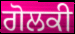
ਗੋਲਕੀ